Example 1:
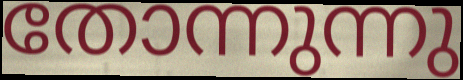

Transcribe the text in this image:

തോന്നുന്നു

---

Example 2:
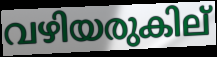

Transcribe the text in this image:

വഴിയരുകില്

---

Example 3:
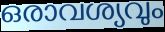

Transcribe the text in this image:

ഒരാവശ്യവും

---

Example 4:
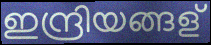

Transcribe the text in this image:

ഇന്ദ്രിയങ്ങള്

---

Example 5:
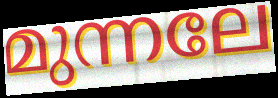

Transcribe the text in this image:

മുന്നലേ